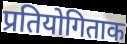
प्रतियोगिताक